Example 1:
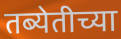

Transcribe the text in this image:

तब्येतीच्या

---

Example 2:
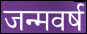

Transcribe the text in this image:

जन्मवर्ष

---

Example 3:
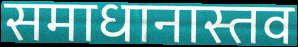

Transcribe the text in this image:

समाधानास्तव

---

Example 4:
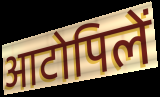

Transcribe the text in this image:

आटोपिलें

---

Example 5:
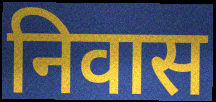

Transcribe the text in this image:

निवास